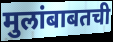
मुलांबाबतची